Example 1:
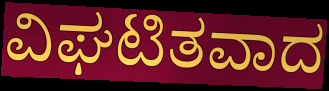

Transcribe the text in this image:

ವಿಘಟಿತವಾದ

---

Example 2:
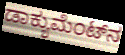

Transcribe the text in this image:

ಡಾಕ್ಯುಮೆಂಟ್‌ನ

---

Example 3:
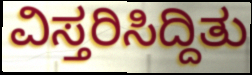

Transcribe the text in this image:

ವಿಸ್ತರಿಸಿದ್ದಿತು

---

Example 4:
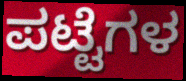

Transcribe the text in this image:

ಪಟ್ಟೆಗಳ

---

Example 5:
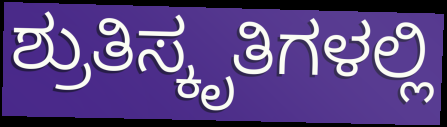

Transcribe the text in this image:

ಶ್ರುತಿಸ್ಕೃತಿಗಳಲ್ಲಿ